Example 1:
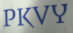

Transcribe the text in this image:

PKVY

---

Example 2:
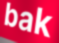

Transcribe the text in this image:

bak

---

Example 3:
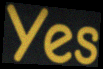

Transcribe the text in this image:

Yes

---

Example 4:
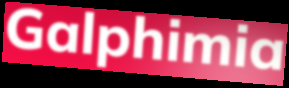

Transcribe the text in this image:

Galphimia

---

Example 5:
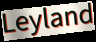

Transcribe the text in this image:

Leyland